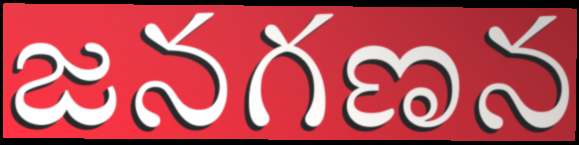
జనగణన